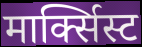
मार्क्सिस्ट